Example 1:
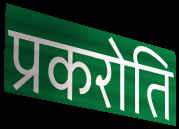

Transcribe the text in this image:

प्रकरोति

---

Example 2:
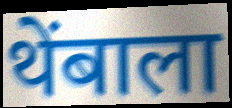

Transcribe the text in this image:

थेंबाला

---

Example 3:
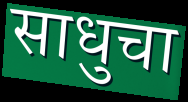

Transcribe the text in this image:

साधुचा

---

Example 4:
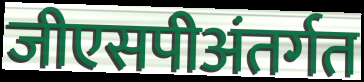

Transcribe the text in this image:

जीएसपीअंतर्गत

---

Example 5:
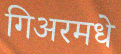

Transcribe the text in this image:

गिअरमधे